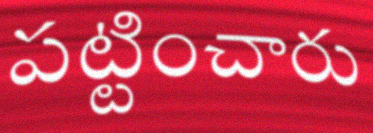
పట్టించారు